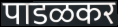
पाडळकर